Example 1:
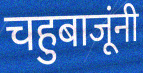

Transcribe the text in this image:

चहुबाजूंनी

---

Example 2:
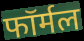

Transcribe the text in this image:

फॉर्मल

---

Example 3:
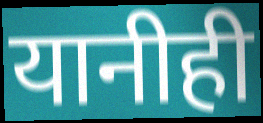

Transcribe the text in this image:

यानीही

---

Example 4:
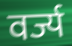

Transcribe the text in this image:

वर्ज्य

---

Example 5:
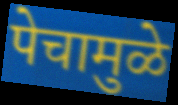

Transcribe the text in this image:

पेचामुळे